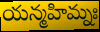
యన్మహిమ్నః